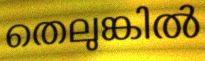
തെലുങ്കിൽ